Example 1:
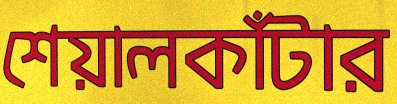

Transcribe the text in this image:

শেয়ালকাঁটার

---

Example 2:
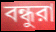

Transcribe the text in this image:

বন্ধুরা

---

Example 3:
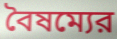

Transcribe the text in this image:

বৈষম্যের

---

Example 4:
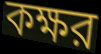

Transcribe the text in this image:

কক্ষর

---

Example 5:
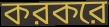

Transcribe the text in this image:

করকরে